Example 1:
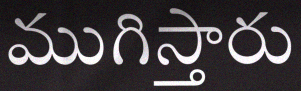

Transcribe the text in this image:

ముగిస్తారు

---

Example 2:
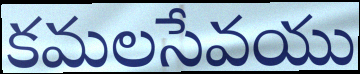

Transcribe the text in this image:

కమలసేవయు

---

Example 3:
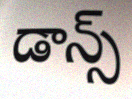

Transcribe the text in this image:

డాన్స్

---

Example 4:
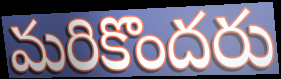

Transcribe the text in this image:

మరికొందరు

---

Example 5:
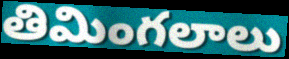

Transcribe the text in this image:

తిమింగలాలు